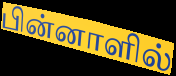
பின்னாளில்